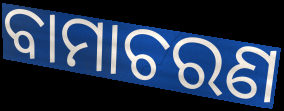
ବାମାଚରଣ